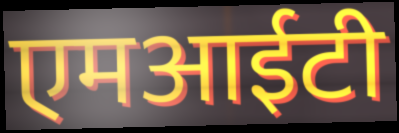
एमआईटी